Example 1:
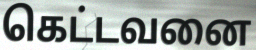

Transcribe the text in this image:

கெட்டவனை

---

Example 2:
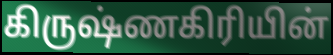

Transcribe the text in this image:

கிருஷ்ணகிரியின்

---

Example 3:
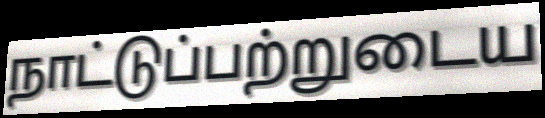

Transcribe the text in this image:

நாட்டுப்பற்றுடைய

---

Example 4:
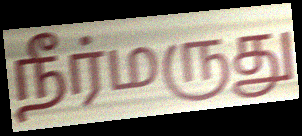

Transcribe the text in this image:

நீர்மருது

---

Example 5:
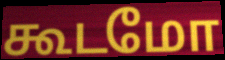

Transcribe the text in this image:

கூடமோ